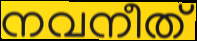
നവനീത്